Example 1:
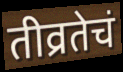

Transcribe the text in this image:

तीव्रतेचं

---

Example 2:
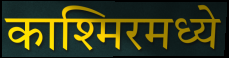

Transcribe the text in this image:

काश्मिरमध्ये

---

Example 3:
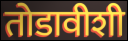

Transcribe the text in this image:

तोडावीशी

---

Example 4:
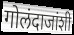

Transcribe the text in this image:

गोलंदाजांशी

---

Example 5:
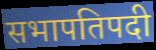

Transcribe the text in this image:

सभापतिपदी